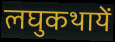
लघुकथायें